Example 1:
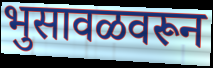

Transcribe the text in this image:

भुसावळवरून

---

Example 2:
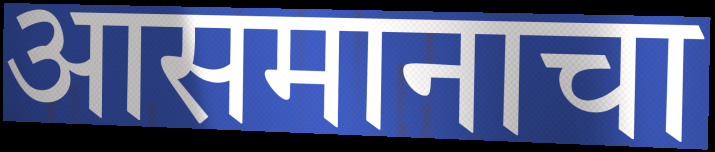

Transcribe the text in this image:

आसमानाचा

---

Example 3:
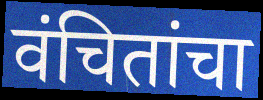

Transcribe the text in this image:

वंचितांचा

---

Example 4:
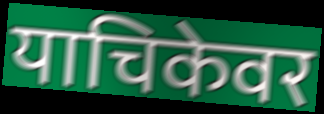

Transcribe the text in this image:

याचिकेवर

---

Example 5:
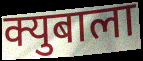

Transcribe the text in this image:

क्युबाला